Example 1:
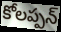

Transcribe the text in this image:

కోలప్పన్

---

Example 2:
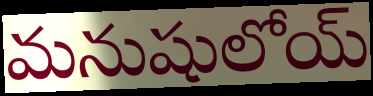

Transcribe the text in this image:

మనుషులోయ్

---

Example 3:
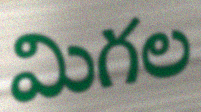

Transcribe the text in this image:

మిగల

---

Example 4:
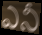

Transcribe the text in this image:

ఎనీ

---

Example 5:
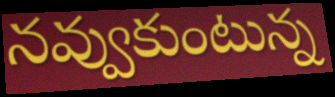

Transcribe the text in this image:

నవ్వుకుంటున్న